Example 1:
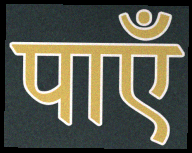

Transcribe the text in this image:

पाएँ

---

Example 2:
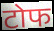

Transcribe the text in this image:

टोफ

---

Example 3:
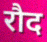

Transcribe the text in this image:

रौद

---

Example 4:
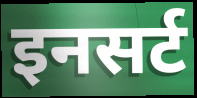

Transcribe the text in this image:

इनसर्ट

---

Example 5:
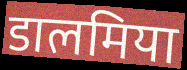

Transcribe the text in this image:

डालमिया